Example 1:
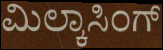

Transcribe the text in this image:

ಮಿಲ್ಕಾಸಿಂಗ್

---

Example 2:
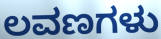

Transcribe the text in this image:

ಲವಣಗಳು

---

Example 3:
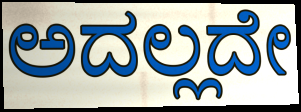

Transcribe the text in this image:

ಅದಲ್ಲದೇ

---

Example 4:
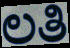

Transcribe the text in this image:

ಲತಿ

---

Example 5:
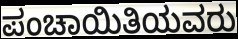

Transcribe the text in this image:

ಪಂಚಾಯಿತಿಯವರು